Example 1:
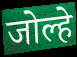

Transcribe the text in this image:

जोल्हे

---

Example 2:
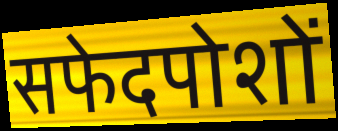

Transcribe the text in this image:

सफेदपोशों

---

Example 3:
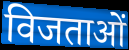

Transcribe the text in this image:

विजताओं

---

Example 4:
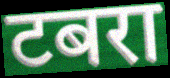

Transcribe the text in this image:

टबरा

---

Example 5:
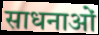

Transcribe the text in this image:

साधनाओं